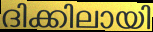
ദിക്കിലായി